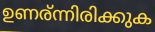
ഉണര്ന്നിരിക്കുക